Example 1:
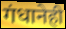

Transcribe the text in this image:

गंधानेही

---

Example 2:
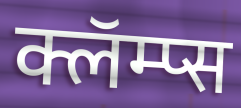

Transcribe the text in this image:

क्लॅम्प्स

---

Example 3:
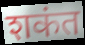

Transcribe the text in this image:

शकंत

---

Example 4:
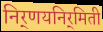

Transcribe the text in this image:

निर्णयनिर्मिती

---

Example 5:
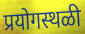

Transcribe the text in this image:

प्रयोगस्थळी